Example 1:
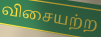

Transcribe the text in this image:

விசையற்ற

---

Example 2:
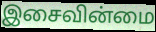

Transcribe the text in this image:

இசைவின்மை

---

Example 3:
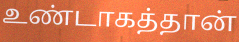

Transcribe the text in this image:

உண்டாகத்தான்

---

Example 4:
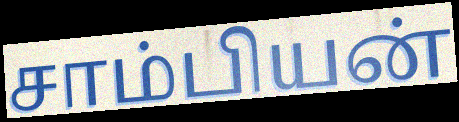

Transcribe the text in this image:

சாம்பியன்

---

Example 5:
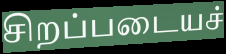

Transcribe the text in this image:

சிறப்படையச்